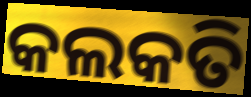
କଲକତି